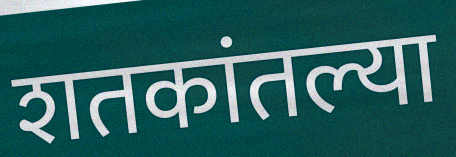
शतकांतल्या